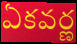
ఏకవర్ణ